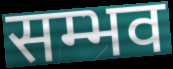
सम्भव